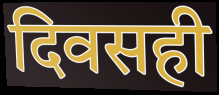
दिवसही